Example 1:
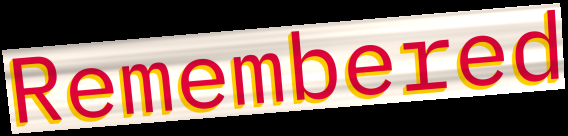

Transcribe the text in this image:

Remembered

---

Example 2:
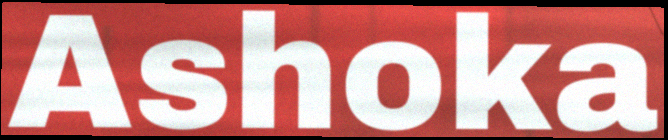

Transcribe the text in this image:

Ashoka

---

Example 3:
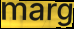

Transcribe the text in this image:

marg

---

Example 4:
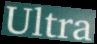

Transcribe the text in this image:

Ultra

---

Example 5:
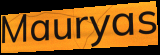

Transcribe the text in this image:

Mauryas